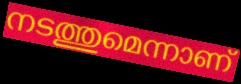
നടത്തുമെന്നാണ്